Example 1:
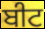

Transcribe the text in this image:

ਬੀਟ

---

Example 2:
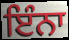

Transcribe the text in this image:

ਇੰਨਾ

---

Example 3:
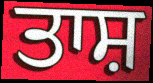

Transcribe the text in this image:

ਤਾਸ਼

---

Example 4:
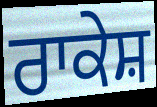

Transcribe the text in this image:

ਰਾਕੇਸ਼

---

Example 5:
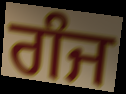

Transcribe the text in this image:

ਗੰਜ